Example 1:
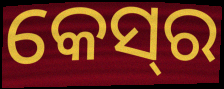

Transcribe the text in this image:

କେସ୍‌ର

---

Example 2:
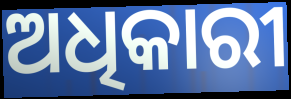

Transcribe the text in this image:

ଅଧିକାରୀ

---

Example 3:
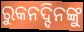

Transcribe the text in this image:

ରୁକନଦ୍ଦିନଙ୍କୁ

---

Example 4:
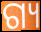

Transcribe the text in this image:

ଗ୍ୟ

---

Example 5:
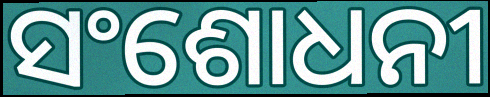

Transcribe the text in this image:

ସଂଶୋଧନୀ